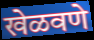
खेळवणे